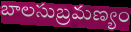
బాలసుబ్రమణ్యం